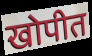
खोपीत